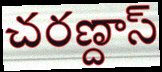
చరణ్దాస్